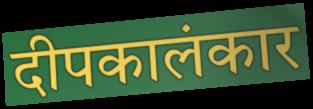
दीपकालंकार